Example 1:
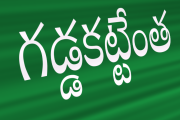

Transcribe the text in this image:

గడ్డకట్టేంత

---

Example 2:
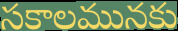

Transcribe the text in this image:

సకాలమునకు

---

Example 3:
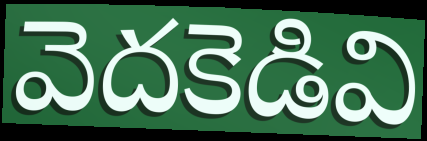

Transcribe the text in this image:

వెదకెడివి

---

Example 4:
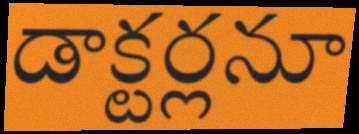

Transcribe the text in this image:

డాక్టర్లనూ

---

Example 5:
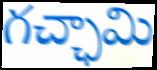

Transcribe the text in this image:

గచ్ఛామి